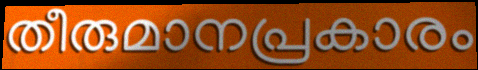
തീരുമാനപ്രകാരം